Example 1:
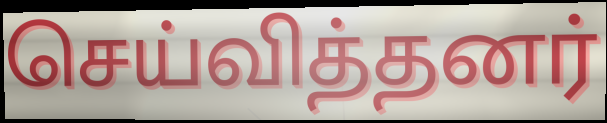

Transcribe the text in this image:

செய்வித்தனர்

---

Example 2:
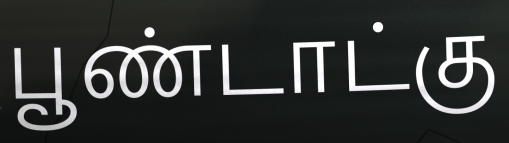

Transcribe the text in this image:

பூண்டாட்கு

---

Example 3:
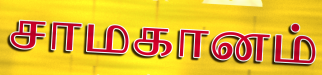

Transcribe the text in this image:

சாமகானம்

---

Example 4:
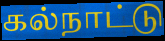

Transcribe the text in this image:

கல்நாட்டு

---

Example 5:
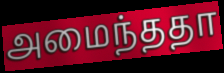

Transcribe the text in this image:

அமைந்ததா